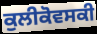
ਕੁਲੀਕੋਵਸਕੀ